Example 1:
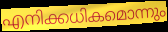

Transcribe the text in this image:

എനിക്കധികമൊന്നും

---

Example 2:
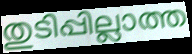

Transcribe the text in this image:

തുടിപ്പില്ലാത്ത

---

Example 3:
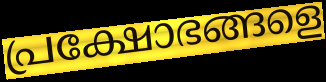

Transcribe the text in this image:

പ്രക്ഷോഭങ്ങളെ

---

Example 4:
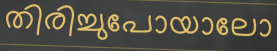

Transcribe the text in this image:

തിരിച്ചുപോയാലോ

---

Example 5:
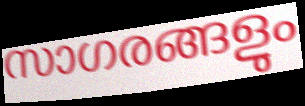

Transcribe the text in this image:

സാഗരങ്ങളും